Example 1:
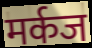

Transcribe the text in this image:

मर्कज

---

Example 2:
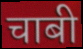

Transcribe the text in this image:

चाबी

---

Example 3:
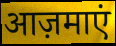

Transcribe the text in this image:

आज़माएं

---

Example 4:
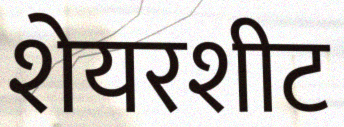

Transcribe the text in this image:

शेयरशीट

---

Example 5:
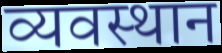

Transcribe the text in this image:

व्यवस्थान